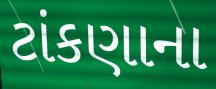
ટાંકણાના